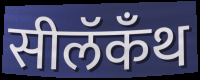
सीलॅकँथ